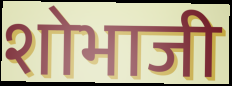
शोभाजी